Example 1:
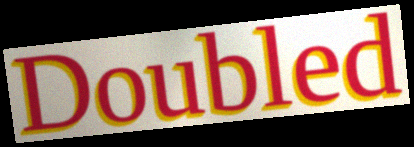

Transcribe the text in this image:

Doubled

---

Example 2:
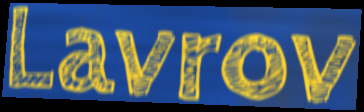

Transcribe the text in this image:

Lavrov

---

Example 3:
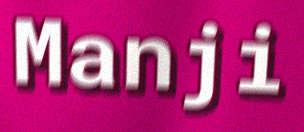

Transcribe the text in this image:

Manji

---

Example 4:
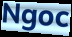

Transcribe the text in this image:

Ngoc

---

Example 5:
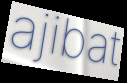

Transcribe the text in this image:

ajibat